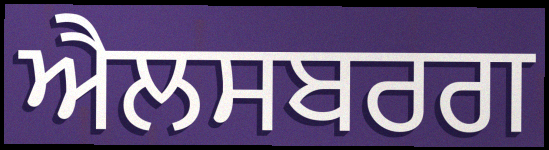
ਐਲਸਬਰਗ